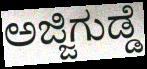
ಅಜ್ಜಿಗುಡ್ಡೆ